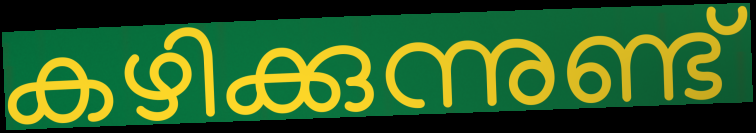
കഴിക്കുന്നുണ്ട്